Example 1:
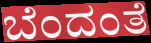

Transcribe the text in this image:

ಬೆಂದಂತೆ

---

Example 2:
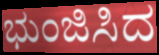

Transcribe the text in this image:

ಭುಂಜಿಸಿದ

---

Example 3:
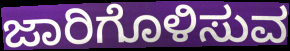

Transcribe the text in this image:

ಜಾರಿಗೊಳಿಸುವ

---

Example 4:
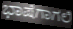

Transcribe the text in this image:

ಭಾಷೆಗಾಗಲಿ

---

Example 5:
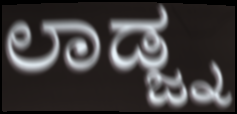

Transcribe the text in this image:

ಲಾಡ್ಜ್ನ